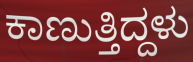
ಕಾಣುತ್ತಿದ್ದಳು